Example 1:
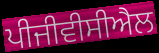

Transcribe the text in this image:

ਪੀਜੀਵੀਸੀਐਲ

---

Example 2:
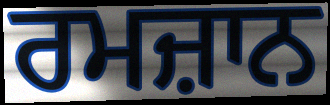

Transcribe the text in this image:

ਰਮਜ਼ਾਨ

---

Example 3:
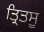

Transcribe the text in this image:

ਤ੍ਰਿਤਸੂ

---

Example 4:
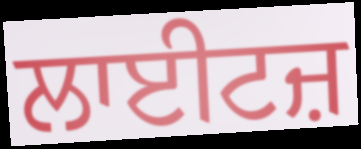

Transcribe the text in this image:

ਲਾਈਟਜ਼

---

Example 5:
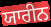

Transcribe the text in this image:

ਯਾਰੀਨ